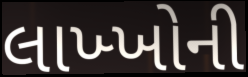
લાખ્ખોની